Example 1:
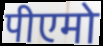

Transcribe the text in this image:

पीएमो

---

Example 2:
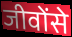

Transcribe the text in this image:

जीवोंसे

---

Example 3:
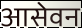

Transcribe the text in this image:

आसेवन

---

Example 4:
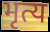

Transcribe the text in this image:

भृत्य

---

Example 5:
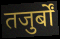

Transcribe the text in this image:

तजुर्बों